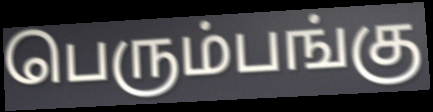
பெரும்பங்கு